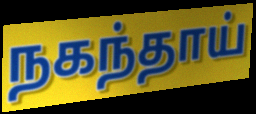
நகந்தாய்